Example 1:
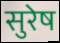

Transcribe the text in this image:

सुरेष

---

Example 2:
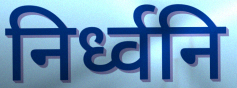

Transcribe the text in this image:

निर्ध्वनि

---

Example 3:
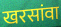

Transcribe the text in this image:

खरसांवा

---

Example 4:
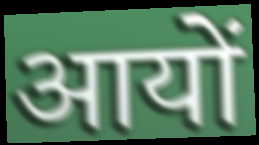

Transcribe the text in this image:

आयों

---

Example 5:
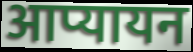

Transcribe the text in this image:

आप्यायन